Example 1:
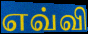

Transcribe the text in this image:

எவ்வி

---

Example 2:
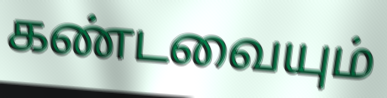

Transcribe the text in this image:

கண்டவையும்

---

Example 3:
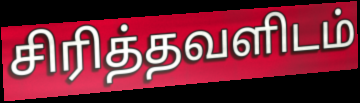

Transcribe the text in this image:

சிரித்தவளிடம்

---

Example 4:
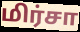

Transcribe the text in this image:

மிர்சா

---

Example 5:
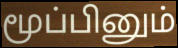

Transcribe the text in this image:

மூப்பினும்